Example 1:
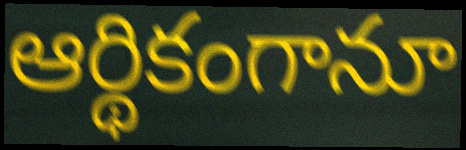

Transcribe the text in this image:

ఆర్థికంగానూ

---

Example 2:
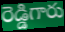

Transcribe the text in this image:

రెడ్డిగారు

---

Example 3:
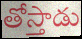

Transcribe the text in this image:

తోస్తాడు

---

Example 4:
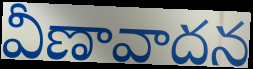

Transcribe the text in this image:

వీణావాదన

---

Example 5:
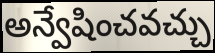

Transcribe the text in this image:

అన్వేషించవచ్చు